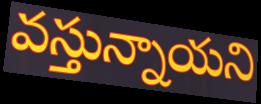
వస్తున్నాయని